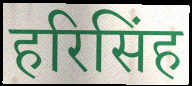
हरिसिंह